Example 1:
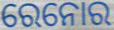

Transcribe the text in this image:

ରେନୋର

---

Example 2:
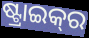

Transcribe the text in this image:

ଷ୍ଟ୍ରାଇକ୍‍ର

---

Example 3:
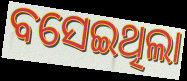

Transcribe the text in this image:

ବସେଇଥିଲା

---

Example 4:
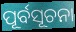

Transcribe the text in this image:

ପୂର୍ବସୂଚନା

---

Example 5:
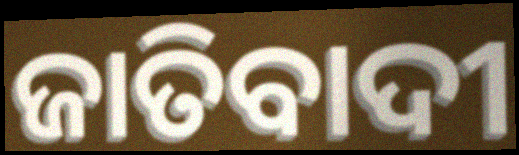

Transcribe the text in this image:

ଜାତିବାଦୀ